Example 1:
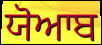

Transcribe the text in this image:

ਯੋਆਬ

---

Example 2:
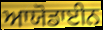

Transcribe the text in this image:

ਆਯੋਡਾਈਨ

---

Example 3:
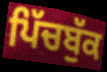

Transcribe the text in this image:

ਪਿੱਚਬੁੱਕ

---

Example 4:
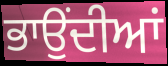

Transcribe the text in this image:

ਭਾਉਂਦੀਆਂ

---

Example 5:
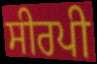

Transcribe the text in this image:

ਸੀਰਪੀ